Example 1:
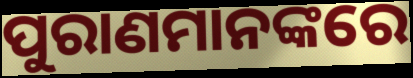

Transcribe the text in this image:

ପୁରାଣମାନଙ୍କରେ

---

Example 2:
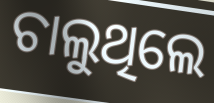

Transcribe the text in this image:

ଚାଲୁଥିଲେ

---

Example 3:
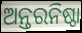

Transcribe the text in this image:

ଅନ୍ତରନିଷ୍ଠା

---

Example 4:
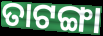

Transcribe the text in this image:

ତାଟଙ୍ଗା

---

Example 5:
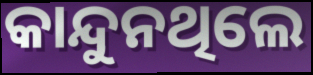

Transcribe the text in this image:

କାନ୍ଦୁନଥିଲେ